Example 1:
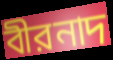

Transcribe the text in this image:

বীরনাদ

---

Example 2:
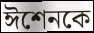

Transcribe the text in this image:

ঈশেনকে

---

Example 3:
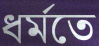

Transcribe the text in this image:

ধর্মতে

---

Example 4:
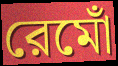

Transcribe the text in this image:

রেমোঁ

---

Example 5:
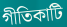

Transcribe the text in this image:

গীতিকাটি